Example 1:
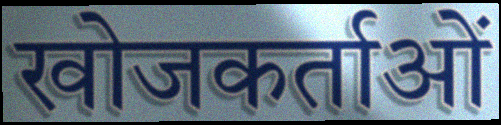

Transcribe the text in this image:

खोजकर्ताओं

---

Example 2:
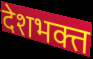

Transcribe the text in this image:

देशभक्त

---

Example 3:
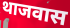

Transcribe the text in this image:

थाजवास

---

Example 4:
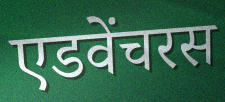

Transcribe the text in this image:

एडवेंचरस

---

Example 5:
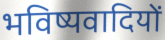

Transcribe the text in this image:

भविष्यवादियों